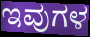
ಇವುಗಳ